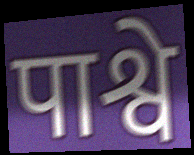
पाश्वे